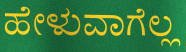
ಹೇಳುವಾಗೆಲ್ಲ